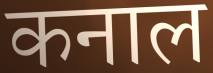
कनाल